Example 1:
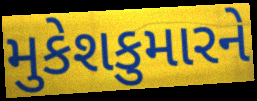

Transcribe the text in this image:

મુકેશકુમારને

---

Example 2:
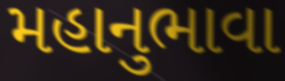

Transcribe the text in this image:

મહાનુભાવા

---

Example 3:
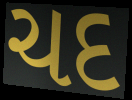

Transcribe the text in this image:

ચદ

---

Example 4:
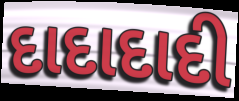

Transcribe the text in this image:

દાદાદાદી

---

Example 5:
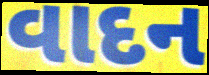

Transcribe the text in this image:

વાદન